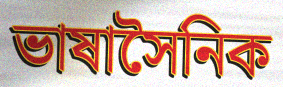
ভাষাসৈনিক